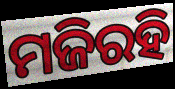
ମଜିରହି